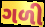
ગળી